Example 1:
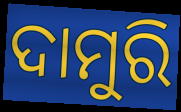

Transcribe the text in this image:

ଦାମୁରି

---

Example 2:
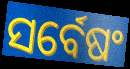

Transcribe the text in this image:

ସର୍ବେଷଂ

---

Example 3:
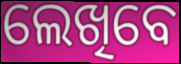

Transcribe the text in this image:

ଲେଖିବେ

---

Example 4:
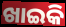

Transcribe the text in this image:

ଖାଇକି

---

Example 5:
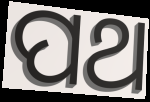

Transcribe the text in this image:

ପଥ